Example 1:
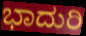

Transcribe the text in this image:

ಭಾದುರಿ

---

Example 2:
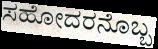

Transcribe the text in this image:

ಸಹೋದರನೊಬ್ಬ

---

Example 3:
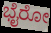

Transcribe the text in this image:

ಭೈರೋ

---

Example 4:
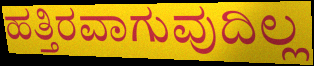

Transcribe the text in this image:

ಹತ್ತಿರವಾಗುವುದಿಲ್ಲ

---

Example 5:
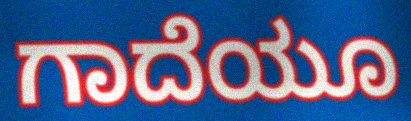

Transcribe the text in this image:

ಗಾದೆಯೂ